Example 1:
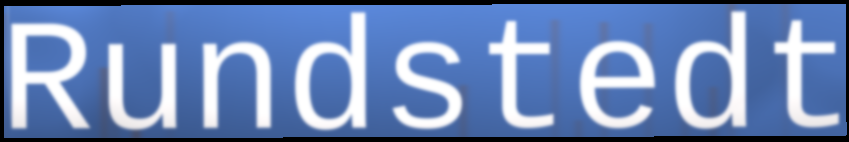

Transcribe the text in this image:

Rundstedt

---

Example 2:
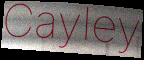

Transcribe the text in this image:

Cayley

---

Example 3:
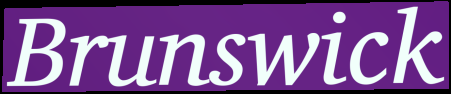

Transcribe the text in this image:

Brunswick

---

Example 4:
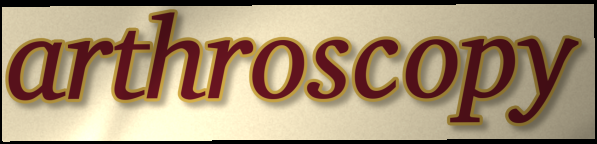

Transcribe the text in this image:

arthroscopy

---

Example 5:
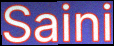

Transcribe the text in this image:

Saini